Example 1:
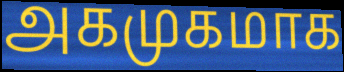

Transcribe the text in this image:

அகமுகமாக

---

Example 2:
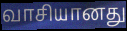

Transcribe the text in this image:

வாசியானது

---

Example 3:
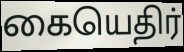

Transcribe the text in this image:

கையெதிர்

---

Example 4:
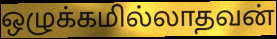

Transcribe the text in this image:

ஒழுக்கமில்லாதவன்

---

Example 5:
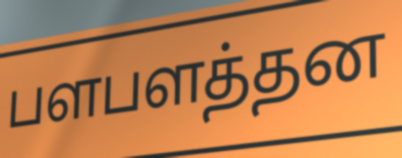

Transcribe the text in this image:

பளபளத்தன